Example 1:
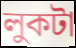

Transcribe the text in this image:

লুকটা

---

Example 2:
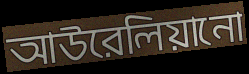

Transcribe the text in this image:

আউরেলিয়ানো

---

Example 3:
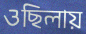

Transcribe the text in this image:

ওছিলায়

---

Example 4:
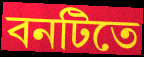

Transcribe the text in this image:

বনটিতে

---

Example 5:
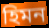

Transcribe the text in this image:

হিমন